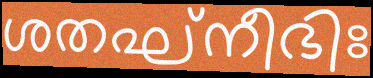
ശതഘ്നീഭിഃ